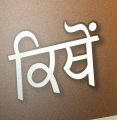
ਕਿਥੋਂ